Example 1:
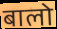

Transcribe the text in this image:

बालो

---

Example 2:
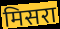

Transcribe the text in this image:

मिसरा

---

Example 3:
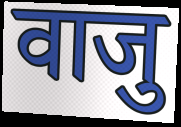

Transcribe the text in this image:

वाजु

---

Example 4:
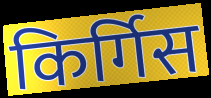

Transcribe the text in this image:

किर्गिस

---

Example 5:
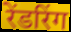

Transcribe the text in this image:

रेंडरिंग